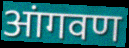
आंगवण